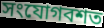
সংযোগবশত